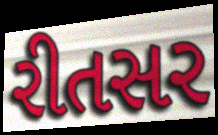
રીતસર